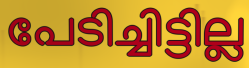
പേടിച്ചിട്ടില്ല